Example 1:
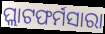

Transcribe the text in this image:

ପ୍ଲାଟଫର୍ମସାରା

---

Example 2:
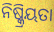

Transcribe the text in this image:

ନିଷ୍କ୍ରିୟତା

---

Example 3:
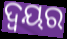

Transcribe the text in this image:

ଦ୍ବୟର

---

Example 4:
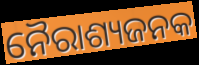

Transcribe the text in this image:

ନୈରାଶ୍ୟଜନକ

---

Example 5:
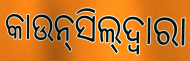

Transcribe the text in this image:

କାଉନ୍‌ସିଲ୍‌ଦ୍ବାରା